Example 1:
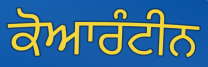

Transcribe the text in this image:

ਕੋਆਰੰਟੀਨ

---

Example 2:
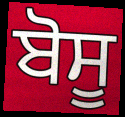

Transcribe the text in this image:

ਬੋਸੂ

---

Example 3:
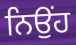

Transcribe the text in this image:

ਨਿਉਂਹ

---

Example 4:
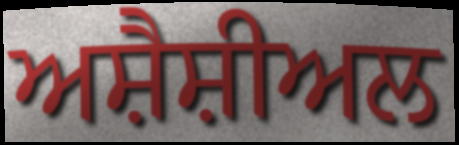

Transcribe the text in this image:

ਅਸ਼ੈਸ਼ੀਅਲ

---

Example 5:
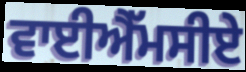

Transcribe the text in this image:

ਵਾਈਐੱਮਸੀਏ